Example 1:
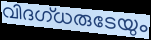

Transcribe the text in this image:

വിദഗ്ധരുടേയും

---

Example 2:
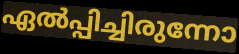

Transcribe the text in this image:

ഏൽപ്പിച്ചിരുന്നോ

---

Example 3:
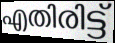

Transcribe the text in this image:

എതിരിട്ട്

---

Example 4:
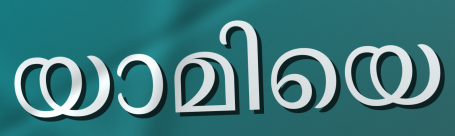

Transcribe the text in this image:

യാമിയെ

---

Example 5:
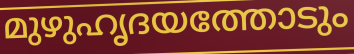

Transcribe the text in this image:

മുഴുഹൃദയത്തോടും